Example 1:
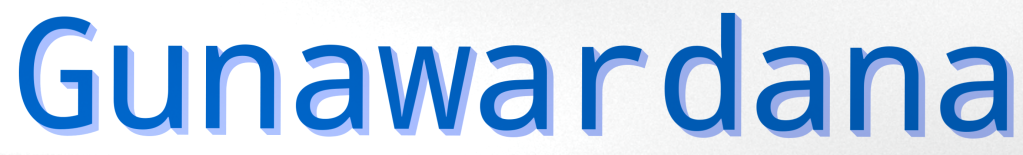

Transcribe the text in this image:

Gunawardana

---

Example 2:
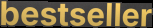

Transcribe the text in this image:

bestseller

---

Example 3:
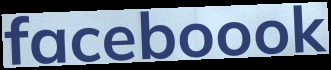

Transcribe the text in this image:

faceboook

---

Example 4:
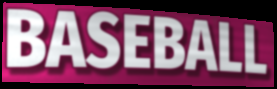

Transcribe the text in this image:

BASEBALL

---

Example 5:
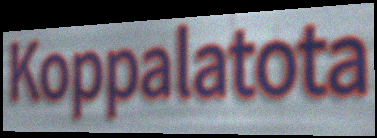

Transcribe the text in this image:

Koppalatota